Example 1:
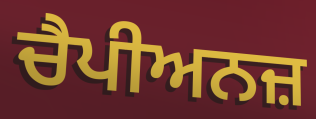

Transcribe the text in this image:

ਚੈਪੀਅਨਜ਼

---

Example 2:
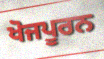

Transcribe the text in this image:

ਖੋਜਪੂਰਨ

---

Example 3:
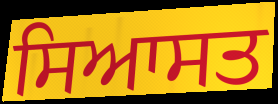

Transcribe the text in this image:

ਸਿਆਸਤ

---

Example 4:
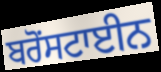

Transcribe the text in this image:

ਬਰੋਂਸਟਾਈਨ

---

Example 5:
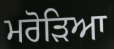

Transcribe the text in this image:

ਮਰੋੜਿਆ